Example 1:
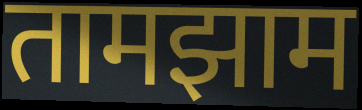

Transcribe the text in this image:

तामझाम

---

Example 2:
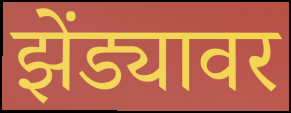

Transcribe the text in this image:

झेंड्यावर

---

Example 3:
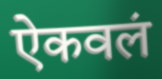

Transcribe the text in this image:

ऐकवलं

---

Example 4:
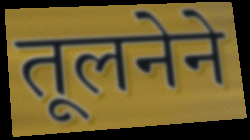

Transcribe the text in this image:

तूलनेने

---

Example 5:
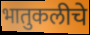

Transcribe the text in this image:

भातुकलीचे